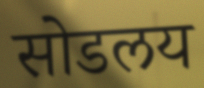
सोडलय